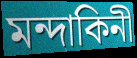
মন্দাকিনী